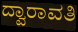
ದ್ವಾರಾವತಿ